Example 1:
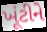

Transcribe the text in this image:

ખૂંટીને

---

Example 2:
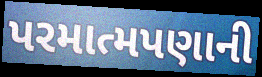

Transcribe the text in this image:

પરમાત્મપણાની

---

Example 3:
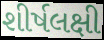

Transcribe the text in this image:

શીર્ષલક્ષી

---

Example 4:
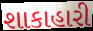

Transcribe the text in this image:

શાકાહારી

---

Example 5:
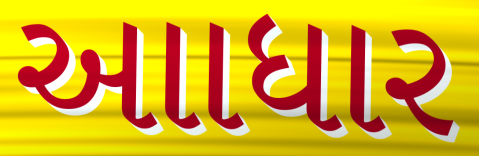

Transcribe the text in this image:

આાધાર